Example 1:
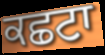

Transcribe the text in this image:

ਕਛਟਾ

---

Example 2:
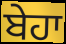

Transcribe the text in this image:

ਬੇਹਾ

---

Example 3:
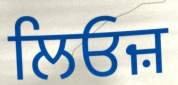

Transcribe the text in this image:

ਲਿਓਜ਼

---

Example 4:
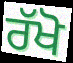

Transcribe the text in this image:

ਰੱਖੋ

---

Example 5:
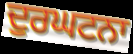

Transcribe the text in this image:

ਦੁਰਘਟਨਾ